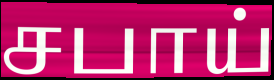
சபாய்